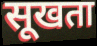
सूखता